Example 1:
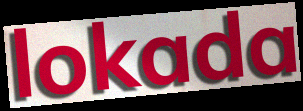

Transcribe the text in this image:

lokada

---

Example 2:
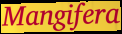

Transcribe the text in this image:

Mangifera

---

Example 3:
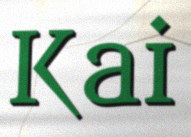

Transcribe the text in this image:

Kai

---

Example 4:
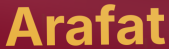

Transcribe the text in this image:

Arafat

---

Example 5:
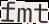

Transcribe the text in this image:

fmt